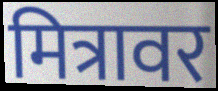
मित्रावर